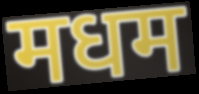
मधम